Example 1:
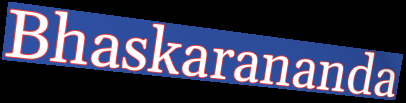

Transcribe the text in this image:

Bhaskarananda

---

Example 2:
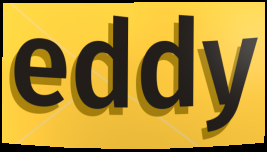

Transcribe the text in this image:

eddy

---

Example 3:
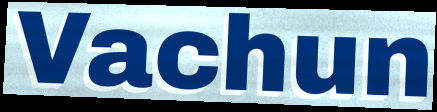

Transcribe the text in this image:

Vachun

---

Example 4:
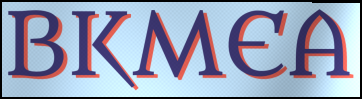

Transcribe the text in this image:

BKMEA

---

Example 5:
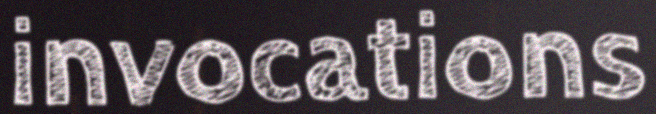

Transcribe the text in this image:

invocations